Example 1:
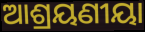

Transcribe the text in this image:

ଆଶ୍ରୟଣୀୟା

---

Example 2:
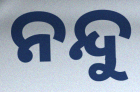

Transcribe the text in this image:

ନନ୍ଦୁ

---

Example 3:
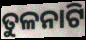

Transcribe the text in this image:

ତୁଳନାଟି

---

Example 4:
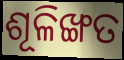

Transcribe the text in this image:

ଶୂଳିଙ୍ଖତ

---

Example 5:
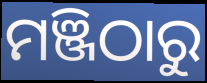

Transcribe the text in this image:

ମଞ୍ଜିଠାରୁ